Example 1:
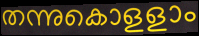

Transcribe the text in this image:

തന്നുകൊളളാം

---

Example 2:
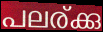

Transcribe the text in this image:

പലര്ക്കു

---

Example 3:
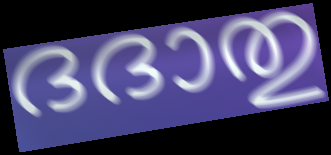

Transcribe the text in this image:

ദദാതു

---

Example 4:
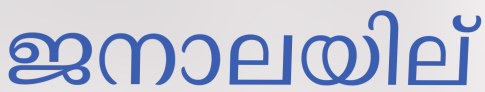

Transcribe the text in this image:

ജനാലയില്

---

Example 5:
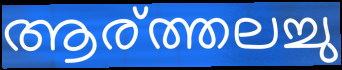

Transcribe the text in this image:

ആര്ത്തലച്ചു